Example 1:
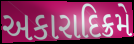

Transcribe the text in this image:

અકારાદિક્રમે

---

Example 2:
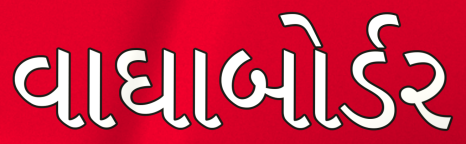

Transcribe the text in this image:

વાઘાબોર્ડર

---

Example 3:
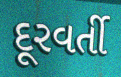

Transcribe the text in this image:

દૂરવર્તી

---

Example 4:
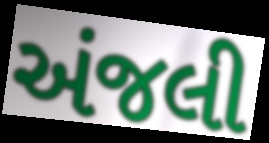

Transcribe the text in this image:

અંજલી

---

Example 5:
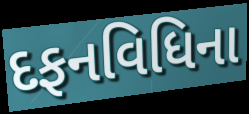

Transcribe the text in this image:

દફનવિધિના